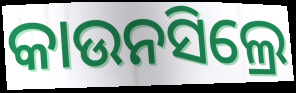
କାଉନସିଲ୍ରେ